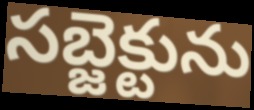
సబ్జెక్టును